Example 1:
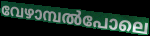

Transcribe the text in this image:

വേഴാമ്പൽപോലെ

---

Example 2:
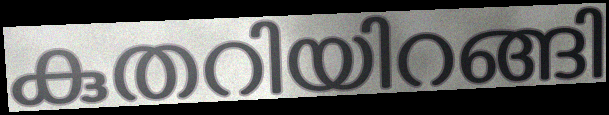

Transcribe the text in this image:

കുതറിയിറങ്ങി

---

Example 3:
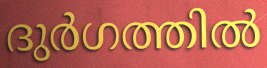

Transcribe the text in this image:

ദുർഗത്തിൽ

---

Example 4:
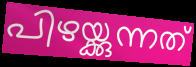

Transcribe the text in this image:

പിഴയ്ക്കുന്നത്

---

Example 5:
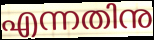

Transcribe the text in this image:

എന്നതിനു